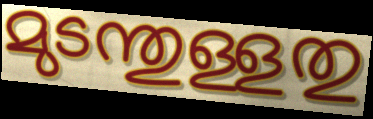
മുടന്തുള്ളതു